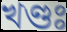
খণ্ডঃ